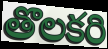
తొలకరి